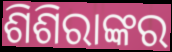
ଶିଶିରାଙ୍କର